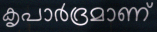
കൃപാർദ്രമാണ്